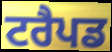
ਟਰੈਪਡ